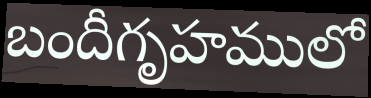
బందీగృహములో